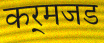
कर्मजड